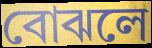
বোঝলে